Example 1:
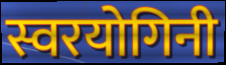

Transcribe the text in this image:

स्वरयोगिनी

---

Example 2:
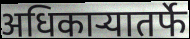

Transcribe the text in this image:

अधिकाऱ्यातर्फे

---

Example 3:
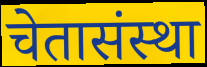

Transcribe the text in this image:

चेतासंस्था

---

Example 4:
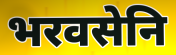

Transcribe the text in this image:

भरवसेनि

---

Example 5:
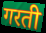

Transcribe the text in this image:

गरती